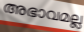
അഭാവമല്ല